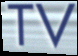
TV